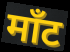
माँट